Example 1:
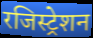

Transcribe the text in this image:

रजिस्ट्रेशन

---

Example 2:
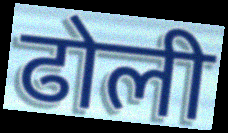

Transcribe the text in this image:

ढोली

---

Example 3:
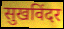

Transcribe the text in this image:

सुखविंदर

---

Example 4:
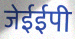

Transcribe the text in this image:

जेईईपी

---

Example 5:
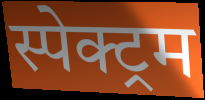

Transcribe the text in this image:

स्पेक्ट्रम